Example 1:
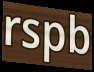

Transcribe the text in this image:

rspb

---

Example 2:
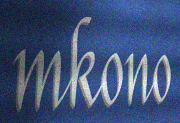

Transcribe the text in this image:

mkono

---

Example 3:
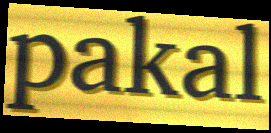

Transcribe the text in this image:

pakal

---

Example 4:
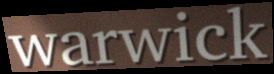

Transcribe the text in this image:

warwick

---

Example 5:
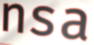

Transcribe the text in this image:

nsa